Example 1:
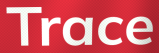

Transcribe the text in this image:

Trace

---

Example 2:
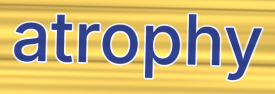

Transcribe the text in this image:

atrophy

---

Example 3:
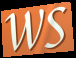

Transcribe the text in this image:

ws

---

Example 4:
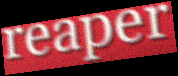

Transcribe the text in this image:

reaper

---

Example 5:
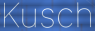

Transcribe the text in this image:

Kusch